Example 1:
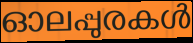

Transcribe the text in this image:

ഓലപ്പുരകൾ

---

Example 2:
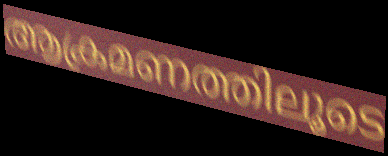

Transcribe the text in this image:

ആക്രമണത്തിലൂടെ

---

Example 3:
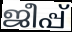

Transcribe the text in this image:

ജീപ്പ്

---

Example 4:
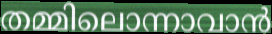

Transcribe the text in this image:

തമ്മിലൊന്നാവാൻ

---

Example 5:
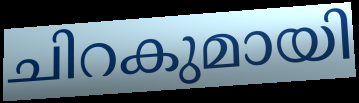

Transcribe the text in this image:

ചിറകുമായി